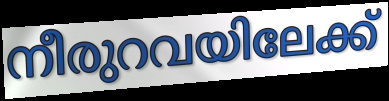
നീരുറവയിലേക്ക്